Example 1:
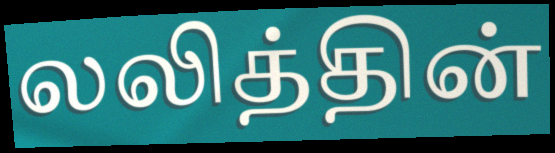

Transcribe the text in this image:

லலித்தின்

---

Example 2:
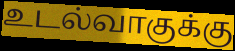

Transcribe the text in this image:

உடல்வாகுக்கு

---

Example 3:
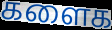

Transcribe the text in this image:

களைக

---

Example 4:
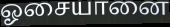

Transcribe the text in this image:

ஓசையானை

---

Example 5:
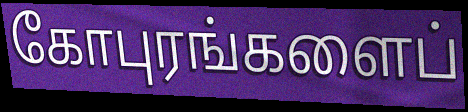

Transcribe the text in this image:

கோபுரங்களைப்